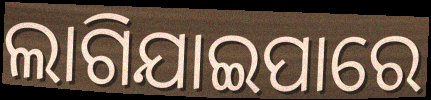
ଲାଗିଯାଇପାରେ